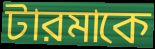
টারমাকে